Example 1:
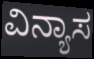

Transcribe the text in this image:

ವಿನ್ಯಾಸ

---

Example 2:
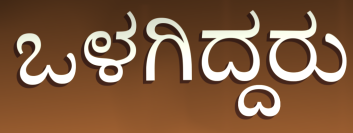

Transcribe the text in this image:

ಒಳಗಿದ್ದರು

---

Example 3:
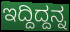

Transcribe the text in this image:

ಇದ್ದಿದ್ದನ್ನ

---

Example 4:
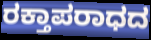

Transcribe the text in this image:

ರಕ್ತಾಪರಾಧದ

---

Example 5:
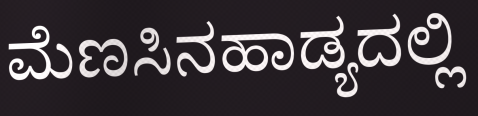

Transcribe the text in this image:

ಮೆಣಸಿನಹಾಡ್ಯದಲ್ಲಿ